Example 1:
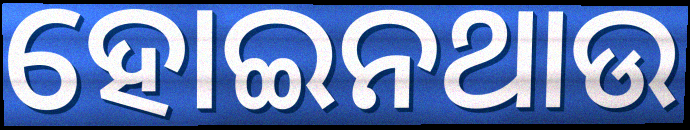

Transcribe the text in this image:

ହୋଇନଥାଉ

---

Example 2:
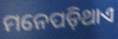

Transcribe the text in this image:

ମନେପଡ଼ିଥାଏ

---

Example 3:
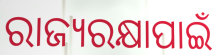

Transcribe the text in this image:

ରାଜ୍ୟରକ୍ଷାପାଇଁ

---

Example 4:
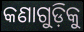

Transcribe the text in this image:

କଣାଗୁଡ଼ିକୁ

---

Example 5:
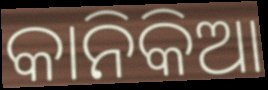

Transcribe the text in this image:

କାନିକିଆ